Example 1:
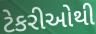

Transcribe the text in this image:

ટેકરીઓથી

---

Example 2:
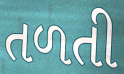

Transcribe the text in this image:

તળતી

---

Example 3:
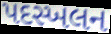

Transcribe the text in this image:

પદસ્ખલન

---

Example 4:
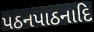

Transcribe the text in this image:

પઠનપાઠનાદિ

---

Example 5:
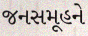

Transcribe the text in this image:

જનસમૂહને